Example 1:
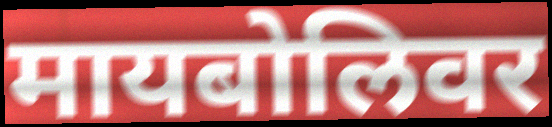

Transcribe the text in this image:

मायबोलिवर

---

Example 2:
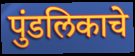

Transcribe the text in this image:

पुंडलिकाचे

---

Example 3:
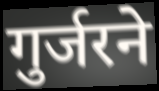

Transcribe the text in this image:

गुर्जरने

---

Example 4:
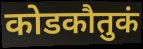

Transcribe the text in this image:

कोडकौतुकं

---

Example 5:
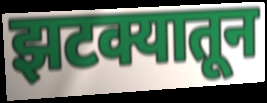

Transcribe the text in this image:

झटक्यातून